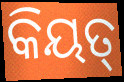
କିୟତ୍